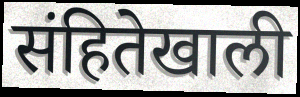
संहितेखाली